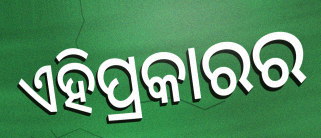
ଏହିପ୍ରକାରର